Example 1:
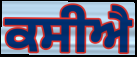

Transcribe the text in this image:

ਕਸੀਐ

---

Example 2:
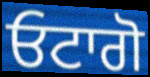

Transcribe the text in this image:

ਓਟਾਗੋ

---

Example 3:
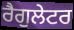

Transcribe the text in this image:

ਰੈਗੁਲੇਟਰ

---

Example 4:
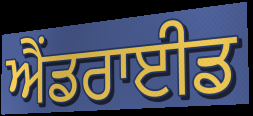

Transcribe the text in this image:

ਐਂਡਰਾਈਡ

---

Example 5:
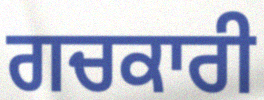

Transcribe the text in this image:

ਗਚਕਾਰੀ